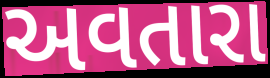
અવતારા